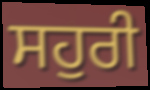
ਸਹੁਰੀ